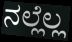
ನಲ್ಲೆಲ್ಲ